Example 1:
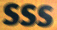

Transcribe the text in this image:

sss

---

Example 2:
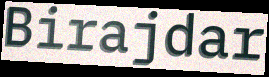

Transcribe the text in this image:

Birajdar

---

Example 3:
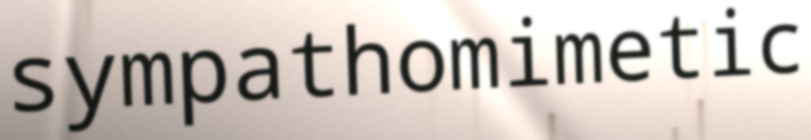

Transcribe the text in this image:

sympathomimetic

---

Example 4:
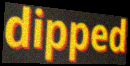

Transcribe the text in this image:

dipped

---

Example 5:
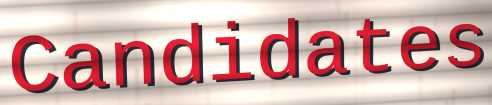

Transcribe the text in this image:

Candidates